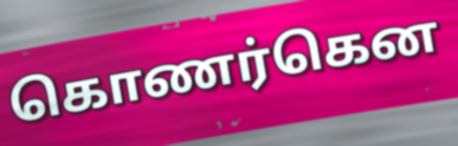
கொணர்கென